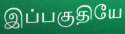
இப்பகுதியே